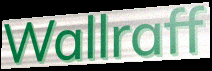
Wallraff